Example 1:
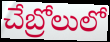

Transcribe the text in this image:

చేబ్రోలులో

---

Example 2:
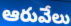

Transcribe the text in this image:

ఆరువేలు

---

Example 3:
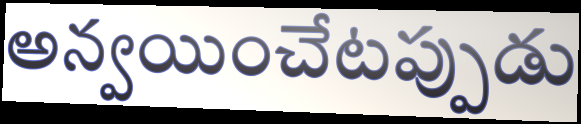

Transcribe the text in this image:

అన్వయించేటప్పుడు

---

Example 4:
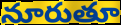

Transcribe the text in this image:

నూరుతూ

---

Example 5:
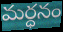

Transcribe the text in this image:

మర్ధనం